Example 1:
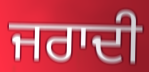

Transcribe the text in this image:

ਜਰਾਦੀ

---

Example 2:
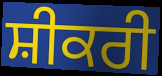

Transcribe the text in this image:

ਸ਼ੀਕਰੀ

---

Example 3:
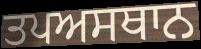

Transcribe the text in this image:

ਤਪਅਸਥਾਨ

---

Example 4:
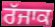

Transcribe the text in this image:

ਰੱਜਾਕ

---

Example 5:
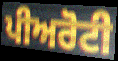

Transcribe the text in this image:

ਪੀਅਰੋਟੀ